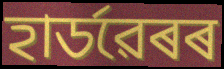
হাৰ্ডৱেৰৰ